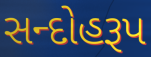
સન્દોહરૂપ